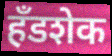
हँडशेक